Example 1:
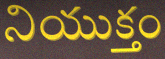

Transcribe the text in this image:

నియుక్తం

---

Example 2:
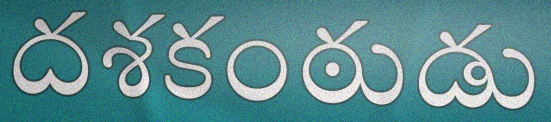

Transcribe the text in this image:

దశకంఠుడు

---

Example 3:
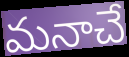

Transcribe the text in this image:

మనాచే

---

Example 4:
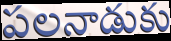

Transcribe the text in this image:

పలనాడుకు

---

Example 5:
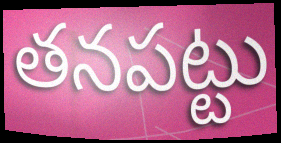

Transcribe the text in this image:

తనపట్టు